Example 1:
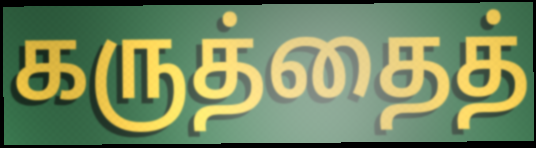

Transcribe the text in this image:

கருத்தைத்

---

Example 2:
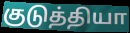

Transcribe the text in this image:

குடுத்தியா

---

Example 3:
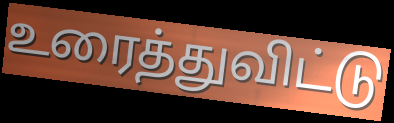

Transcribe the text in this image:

உரைத்துவிட்டு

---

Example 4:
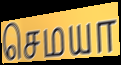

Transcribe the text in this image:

செமயா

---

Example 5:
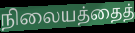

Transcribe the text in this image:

நிலையத்தைத்